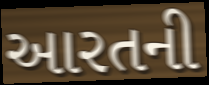
આરતની